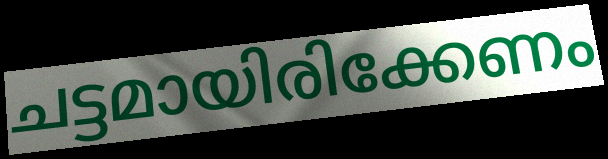
ചട്ടമായിരിക്കേണം